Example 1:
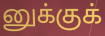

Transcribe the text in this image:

னுக்குக்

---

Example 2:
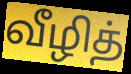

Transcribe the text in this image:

வீழித்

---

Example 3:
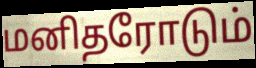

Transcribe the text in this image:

மனிதரோடும்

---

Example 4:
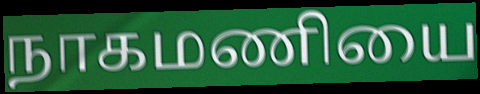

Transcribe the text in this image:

நாகமணியை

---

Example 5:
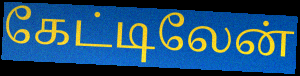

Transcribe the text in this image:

கேட்டிலேன்